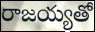
రాజయ్యతో